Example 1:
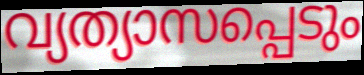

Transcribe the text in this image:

വ്യത്യാസപ്പെടും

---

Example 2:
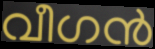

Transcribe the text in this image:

വീഗൻ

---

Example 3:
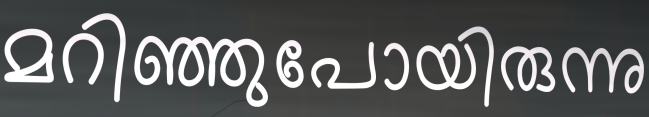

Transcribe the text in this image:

മറിഞ്ഞുപോയിരുന്നു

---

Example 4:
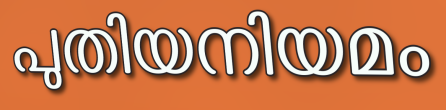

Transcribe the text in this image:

പുതിയനിയമം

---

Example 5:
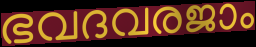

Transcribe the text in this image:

ഭവദവരജാം